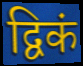
द्विकं